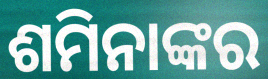
ଶମିନାଙ୍କର